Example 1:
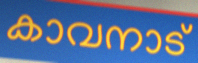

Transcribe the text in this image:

കാവനാട്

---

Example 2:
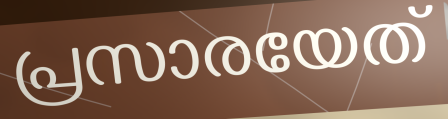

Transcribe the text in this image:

പ്രസാരയേത്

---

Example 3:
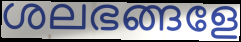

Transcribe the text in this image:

ശലഭങ്ങളേ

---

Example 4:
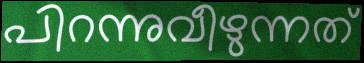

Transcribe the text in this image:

പിറന്നുവീഴുന്നത്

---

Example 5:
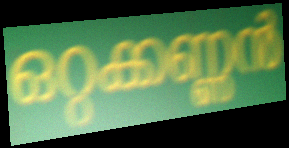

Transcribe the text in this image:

ഒറ്റക്കണ്ണൻ